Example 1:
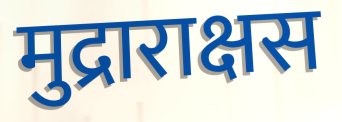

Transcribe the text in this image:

मुद्राराक्षस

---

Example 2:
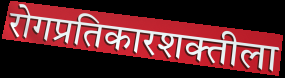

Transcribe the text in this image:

रोगप्रतिकारशक्तीला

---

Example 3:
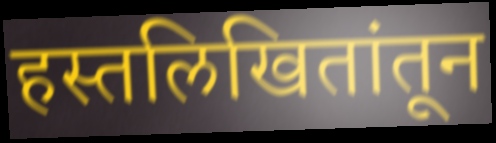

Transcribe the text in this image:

हस्तलिखितांतून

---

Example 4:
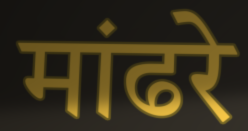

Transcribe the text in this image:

मांढरे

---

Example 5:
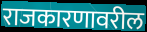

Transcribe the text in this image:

राजकारणावरील